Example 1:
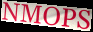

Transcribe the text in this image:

NMOPS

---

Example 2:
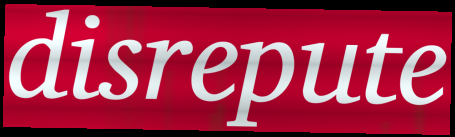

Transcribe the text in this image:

disrepute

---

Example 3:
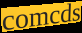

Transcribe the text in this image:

comcds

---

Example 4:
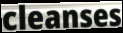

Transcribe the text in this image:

cleanses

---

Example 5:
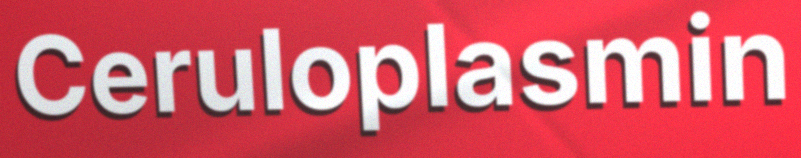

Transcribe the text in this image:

Ceruloplasmin